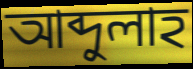
আব্দুলাহ